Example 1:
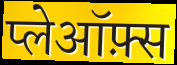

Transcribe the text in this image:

प्लेऑफ़्स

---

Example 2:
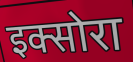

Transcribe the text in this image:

इक्सोरा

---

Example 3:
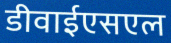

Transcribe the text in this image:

डीवाईएसएल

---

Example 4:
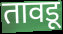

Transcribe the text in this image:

तावडू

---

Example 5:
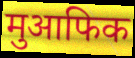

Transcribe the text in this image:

मुआफिक